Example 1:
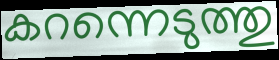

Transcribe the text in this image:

കറന്നെടുത്തു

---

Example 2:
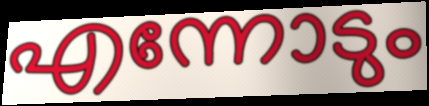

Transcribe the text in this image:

എന്നോടും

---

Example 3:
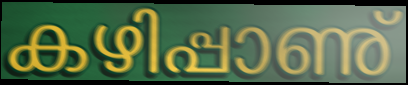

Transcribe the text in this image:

കഴിപ്പാണു്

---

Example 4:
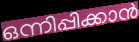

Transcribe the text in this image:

ഒന്നിപ്പിക്കാൻ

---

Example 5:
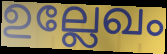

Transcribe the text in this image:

ഉല്ലേഖം